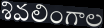
శివలింగాల